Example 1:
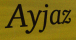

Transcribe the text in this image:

Ayjaz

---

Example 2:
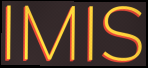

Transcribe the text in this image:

IMIS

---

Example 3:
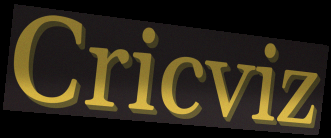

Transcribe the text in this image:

Cricviz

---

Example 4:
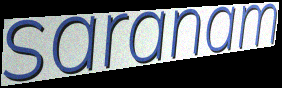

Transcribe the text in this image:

saranam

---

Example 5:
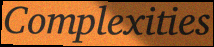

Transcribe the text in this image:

Complexities